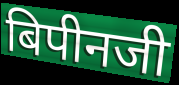
बिपीनजी